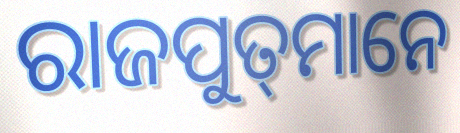
ରାଜପୁତ୍‍ମାନେ